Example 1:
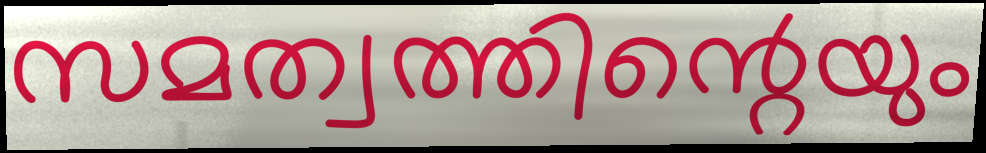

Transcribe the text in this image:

സമത്വത്തിന്റെയും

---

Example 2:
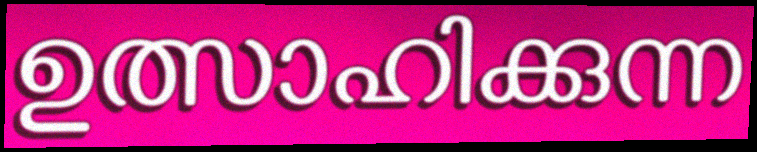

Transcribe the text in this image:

ഉത്സാഹിക്കുന്ന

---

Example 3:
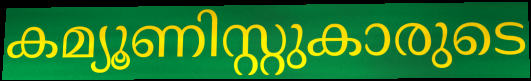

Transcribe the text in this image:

കമ്യൂണിസ്റ്റുകാരുടെ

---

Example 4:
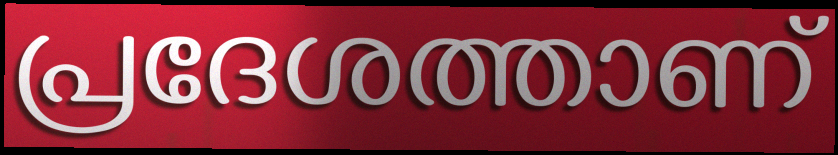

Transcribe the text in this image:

പ്രദേശത്താണ്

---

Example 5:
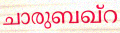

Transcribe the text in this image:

ചാരുബഖ്റ